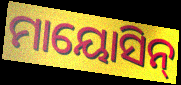
ମାୟୋସିନ୍